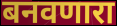
बनवणारा